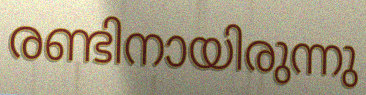
രണ്ടിനായിരുന്നു